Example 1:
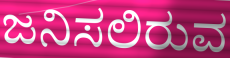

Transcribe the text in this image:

ಜನಿಸಲಿರುವ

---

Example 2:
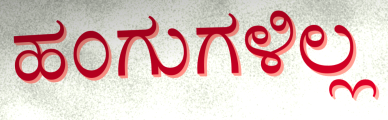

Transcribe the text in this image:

ಹಂಗುಗಳಿಲ್ಲ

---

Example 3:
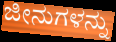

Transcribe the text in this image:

ಜೀನುಗಳನ್ನು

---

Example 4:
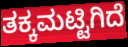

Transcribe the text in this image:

ತಕ್ಕಮಟ್ಟಿಗಿದೆ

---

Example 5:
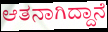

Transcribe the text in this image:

ಆತನಾಗಿದ್ದಾನೆ